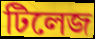
টিলেজ